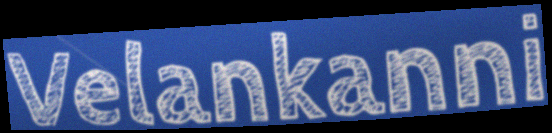
Velankanni